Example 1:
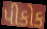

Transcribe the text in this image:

પીકોક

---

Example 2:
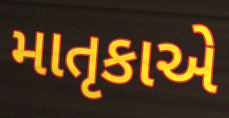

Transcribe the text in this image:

માતૃકાએ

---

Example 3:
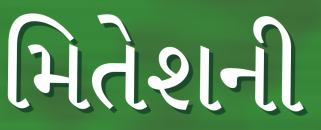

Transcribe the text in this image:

મિતેશની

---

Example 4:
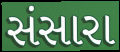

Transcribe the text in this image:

સંસારા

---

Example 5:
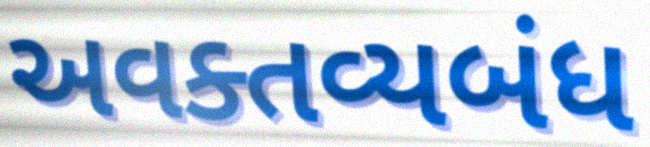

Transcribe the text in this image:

અવક્તવ્યબંધ